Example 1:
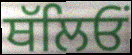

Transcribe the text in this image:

ਥੱਲਿਓਂ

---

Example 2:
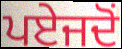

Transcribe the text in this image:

ਪਏਜਦੋਂ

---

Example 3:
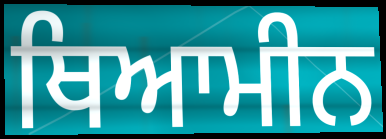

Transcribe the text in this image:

ਥਿਆਮੀਨ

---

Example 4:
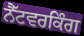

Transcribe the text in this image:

ਨੈੱਟਵਰਕਿੰਗ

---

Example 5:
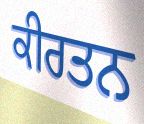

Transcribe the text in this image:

ਕੀਰਤਨ